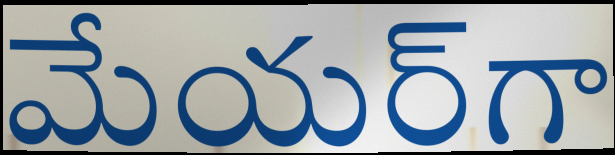
మేయర్‌గా